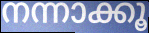
നന്നാക്കൂ